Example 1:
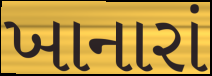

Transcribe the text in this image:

ખાનારાં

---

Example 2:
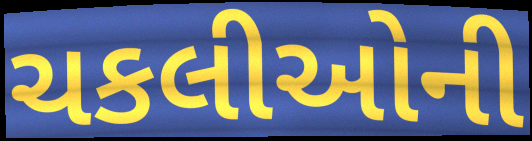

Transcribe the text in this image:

ચકલીઓની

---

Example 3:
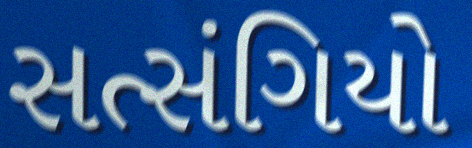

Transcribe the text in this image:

સત્સંગિયો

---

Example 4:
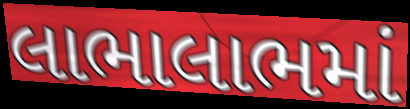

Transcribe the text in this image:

લાભાલાભમાં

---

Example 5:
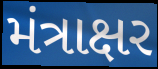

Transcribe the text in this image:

મંત્રાક્ષર